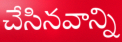
చేసినవాన్ని